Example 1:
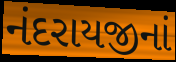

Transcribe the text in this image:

નંદરાયજીનાં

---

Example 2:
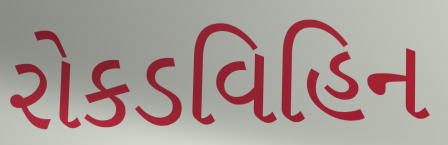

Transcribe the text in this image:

રોકડવિહિન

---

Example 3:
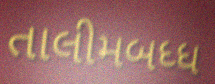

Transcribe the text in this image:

તાલીમબધ્ધ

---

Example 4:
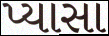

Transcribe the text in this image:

પ્યાસા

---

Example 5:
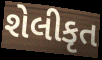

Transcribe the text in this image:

શેલીકૃત